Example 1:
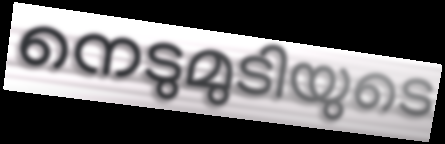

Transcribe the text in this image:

നെടുമുടിയുടെ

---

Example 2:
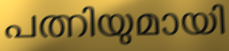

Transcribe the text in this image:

പത്നിയുമായി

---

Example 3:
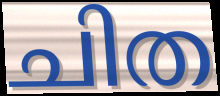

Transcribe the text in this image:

ചിത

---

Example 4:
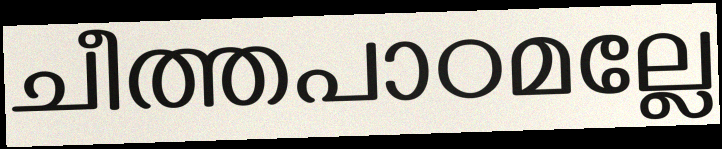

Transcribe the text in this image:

ചീത്തപാഠമല്ലേ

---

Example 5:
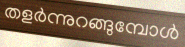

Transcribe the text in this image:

തളർന്നുറങ്ങുമ്പോൾ